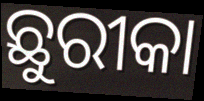
ଛୁରୀକା